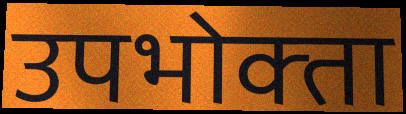
उपभोक्‍ता